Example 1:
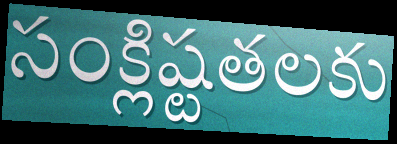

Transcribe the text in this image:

సంక్లిష్టతలకు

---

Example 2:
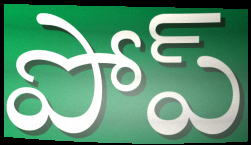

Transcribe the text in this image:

పోప్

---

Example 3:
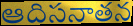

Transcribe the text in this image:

ఆదిసనాతన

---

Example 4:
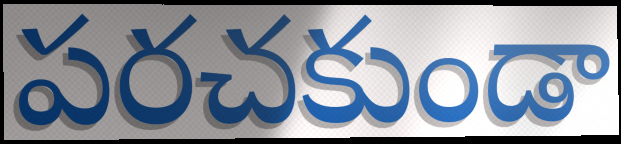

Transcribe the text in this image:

పరచకుండా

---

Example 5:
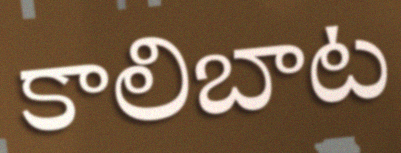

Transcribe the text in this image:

కాలిబాట